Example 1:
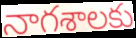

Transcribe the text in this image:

నాగశాలకు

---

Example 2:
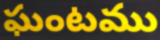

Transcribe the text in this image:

ఘంటము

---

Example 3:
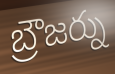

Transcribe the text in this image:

బ్రౌజర్ను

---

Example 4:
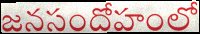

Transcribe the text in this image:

జనసందోహంలో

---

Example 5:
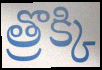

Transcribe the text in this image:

త్రొక్కి